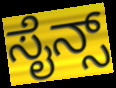
ಸೈನ್ಸ್